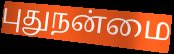
புதுநன்மை